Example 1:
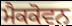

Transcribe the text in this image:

ਮੈਕਕੋਵਨ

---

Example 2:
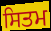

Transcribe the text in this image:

ਸਿਤਮ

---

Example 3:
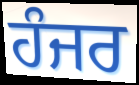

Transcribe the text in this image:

ਹੰਜਰ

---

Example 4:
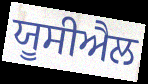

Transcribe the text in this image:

ਯੂਸੀਐਲ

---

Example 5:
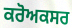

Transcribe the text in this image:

ਕਰੋਅਕਸਰ